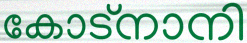
കോട്നാനി